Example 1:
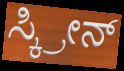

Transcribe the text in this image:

ಸ್ಕ್ರೀನ್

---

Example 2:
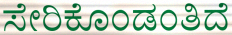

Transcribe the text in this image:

ಸೇರಿಕೊಂಡಂತಿದೆ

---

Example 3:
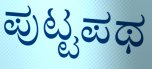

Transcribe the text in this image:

ಪುಟ್ಟಪಥ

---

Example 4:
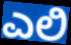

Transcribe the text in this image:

ಎಲಿ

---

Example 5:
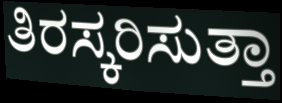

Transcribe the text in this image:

ತಿರಸ್ಕರಿಸುತ್ತಾ